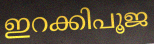
ഇറക്കിപൂജ